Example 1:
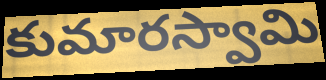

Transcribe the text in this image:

కుమారస్వామి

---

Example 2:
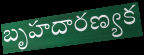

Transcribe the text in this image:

బృహదారణ్యక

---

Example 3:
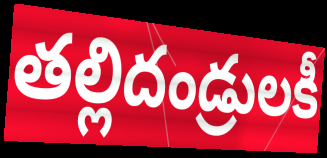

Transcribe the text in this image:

తల్లిదండ్రులకీ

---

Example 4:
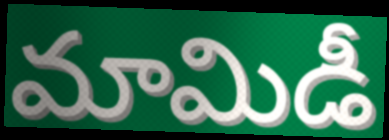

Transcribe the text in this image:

మామిడీ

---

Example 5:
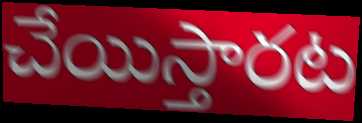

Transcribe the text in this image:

చేయిస్తారట